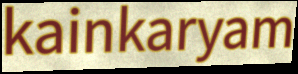
kainkaryam